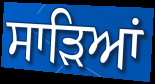
ਸਾੜਿਆਂ